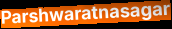
Parshwaratnasagar